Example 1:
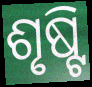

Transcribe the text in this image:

ଶୃଷ୍ଟି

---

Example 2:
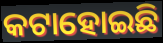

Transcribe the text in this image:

କଟାହୋଇଛି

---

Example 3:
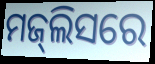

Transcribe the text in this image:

ମଜ୍‌ଲିସରେ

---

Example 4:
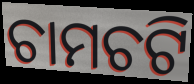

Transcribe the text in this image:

ଚାମଚଟି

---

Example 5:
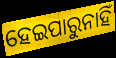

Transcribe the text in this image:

ହେଇପାରୁନାହିଁ